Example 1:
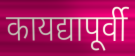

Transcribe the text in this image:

कायद्यापूर्वी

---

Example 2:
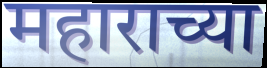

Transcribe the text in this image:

महाराच्या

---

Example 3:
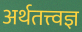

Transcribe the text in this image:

अर्थतत्त्वज्ञ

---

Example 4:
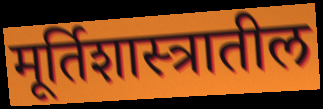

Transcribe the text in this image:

मूर्तिशास्त्रातील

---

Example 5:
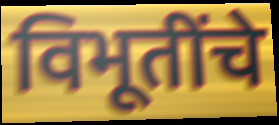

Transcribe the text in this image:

विभूतींचे